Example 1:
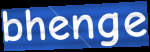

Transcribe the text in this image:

bhenge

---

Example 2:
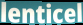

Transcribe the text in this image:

lenticel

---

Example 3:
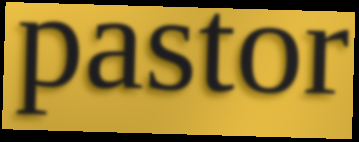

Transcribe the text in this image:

pastor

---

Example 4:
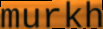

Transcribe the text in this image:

murkh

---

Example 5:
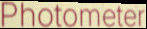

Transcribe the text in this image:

Photometer